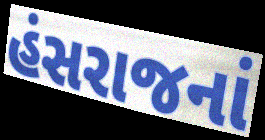
હંસરાજનાં